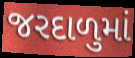
જરદાળુમાં